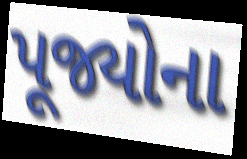
પૂજ્યોના